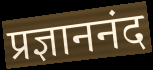
प्रज्ञाननंद